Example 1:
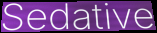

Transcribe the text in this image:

Sedative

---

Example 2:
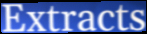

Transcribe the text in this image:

Extracts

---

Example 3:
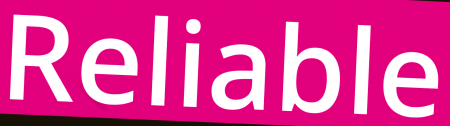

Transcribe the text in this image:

Reliable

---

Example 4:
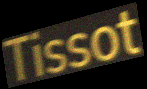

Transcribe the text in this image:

Tissot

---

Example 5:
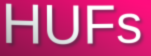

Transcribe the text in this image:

HUFs